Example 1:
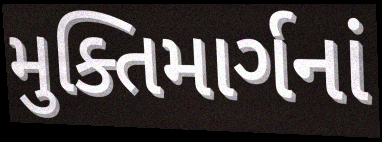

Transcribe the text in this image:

મુક્તિમાર્ગનાં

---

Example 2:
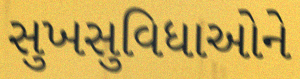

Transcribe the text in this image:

સુખસુવિધાઓને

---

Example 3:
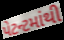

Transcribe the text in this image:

પેટન્ટમાંથી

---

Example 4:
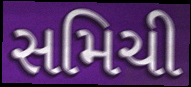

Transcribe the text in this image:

સમિચી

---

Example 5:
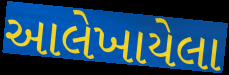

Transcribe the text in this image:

આલેખાયેલા